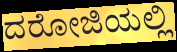
ದರೋಜಿಯಲ್ಲಿ